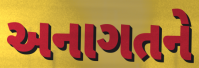
અનાગતને